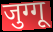
जुग्गू